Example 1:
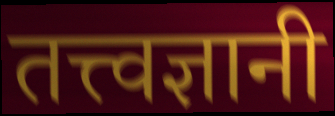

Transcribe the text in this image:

तत्त्वज्ञानी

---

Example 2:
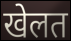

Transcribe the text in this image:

खेलत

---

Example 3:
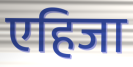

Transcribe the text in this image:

एहिजा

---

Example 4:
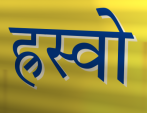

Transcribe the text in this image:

ह्रस्वो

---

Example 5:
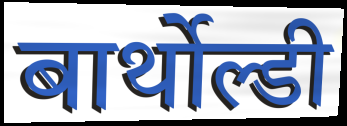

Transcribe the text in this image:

बार्थोल्डी